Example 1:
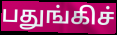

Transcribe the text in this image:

பதுங்கிச்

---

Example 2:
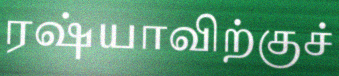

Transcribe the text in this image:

ரஷ்யாவிற்குச்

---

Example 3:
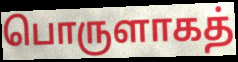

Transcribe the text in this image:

பொருளாகத்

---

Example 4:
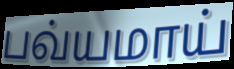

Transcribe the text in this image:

பவ்யமாய்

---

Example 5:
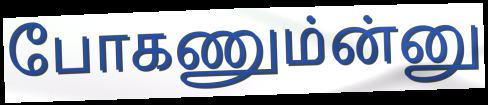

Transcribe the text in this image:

போகணும்ன்னு